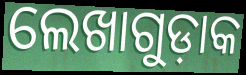
ଲେଖାଗୁଡ଼ାକ